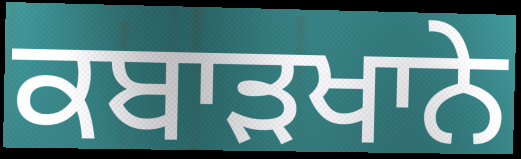
ਕਬਾੜਖਾਨੇ